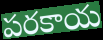
పరకాయ